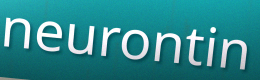
neurontin